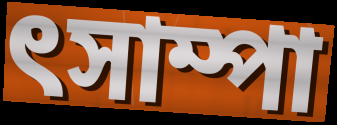
ৎসাম্পা